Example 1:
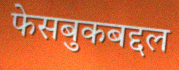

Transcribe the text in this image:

फेसबुकबद्दल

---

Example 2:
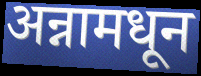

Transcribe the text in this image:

अन्नामधून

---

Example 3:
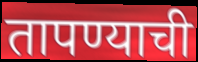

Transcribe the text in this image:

तापण्याची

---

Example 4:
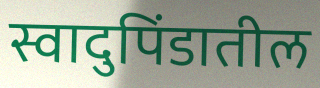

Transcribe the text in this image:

स्वादुपिंडातील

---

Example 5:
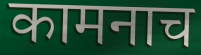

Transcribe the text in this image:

कामनाच